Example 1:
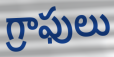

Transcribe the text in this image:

గ్రాఫులు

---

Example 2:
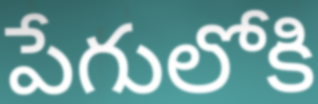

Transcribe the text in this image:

పేగులోకి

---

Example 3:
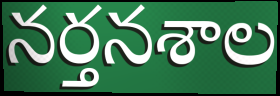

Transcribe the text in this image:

నర్తనశాల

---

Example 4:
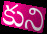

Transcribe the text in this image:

కుని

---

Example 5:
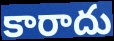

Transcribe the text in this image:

కారాదు